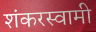
शंकरस्वामी